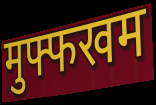
मुफ्फखम